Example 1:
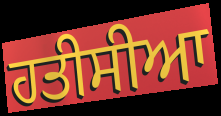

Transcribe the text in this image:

ਹਤੀਸੀਆ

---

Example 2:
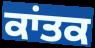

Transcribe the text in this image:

ਕਾਂਤਕ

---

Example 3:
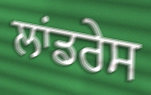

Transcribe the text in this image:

ਲਾਂਡਰੇਸ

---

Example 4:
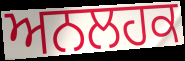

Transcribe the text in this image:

ਅਨਲਹਕ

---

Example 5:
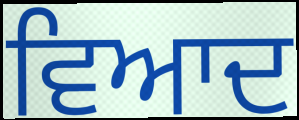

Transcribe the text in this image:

ਵਿਆਦ